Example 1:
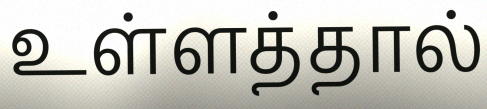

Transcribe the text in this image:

உள்ளத்தால்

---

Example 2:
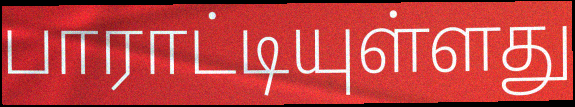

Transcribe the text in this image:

பாராட்டியுள்ளது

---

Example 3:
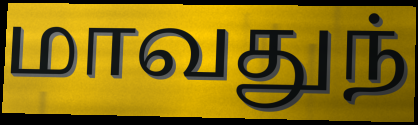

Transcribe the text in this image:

மாவதுந்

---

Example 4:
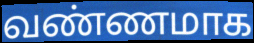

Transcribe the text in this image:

வண்ணமாக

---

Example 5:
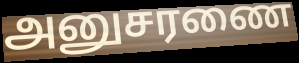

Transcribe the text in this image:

அனுசரணை